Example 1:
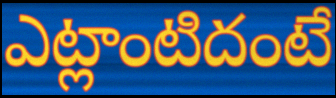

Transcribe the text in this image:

ఎట్లాంటిదంటే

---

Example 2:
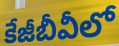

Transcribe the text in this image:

కేజీబీవీలో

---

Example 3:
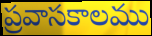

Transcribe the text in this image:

ప్రవాసకాలము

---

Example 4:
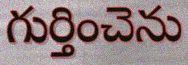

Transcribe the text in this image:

గుర్తించెను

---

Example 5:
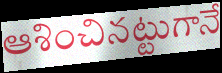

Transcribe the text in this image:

ఆశించినట్టుగానే